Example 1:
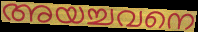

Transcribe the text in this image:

അയച്ചവനെ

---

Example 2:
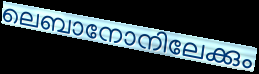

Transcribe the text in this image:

ലെബാനോനിലേക്കും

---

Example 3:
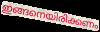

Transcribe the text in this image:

ഇങ്ങനെയിരിക്കണം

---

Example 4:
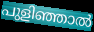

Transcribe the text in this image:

പുളിഞ്ഞാൽ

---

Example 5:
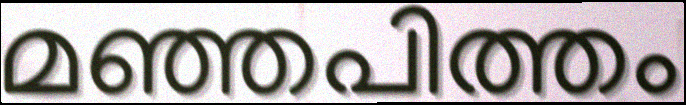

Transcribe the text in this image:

മഞ്ഞപിത്തം